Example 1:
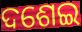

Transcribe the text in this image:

ଦଶେଇ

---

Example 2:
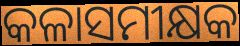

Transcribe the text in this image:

କଳାସମୀକ୍ଷକ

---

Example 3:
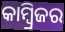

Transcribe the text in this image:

କାମ୍ବ୍ରିଜର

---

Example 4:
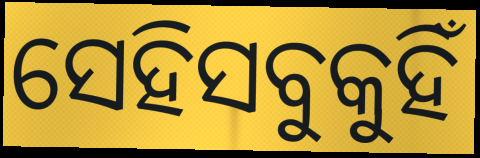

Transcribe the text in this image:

ସେହିସବୁକୁହିଁ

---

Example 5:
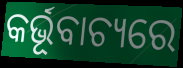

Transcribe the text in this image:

କର୍ଭୂବାଚ୍ୟରେ